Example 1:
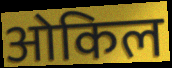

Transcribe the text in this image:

ओकिल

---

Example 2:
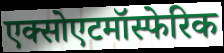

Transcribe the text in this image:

एक्सोएटमॉस्फेरिक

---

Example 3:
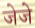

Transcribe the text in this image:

जेजे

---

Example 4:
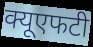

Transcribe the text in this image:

क्यूएफटी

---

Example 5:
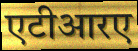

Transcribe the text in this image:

एटीआरए